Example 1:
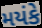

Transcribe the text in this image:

મયંકે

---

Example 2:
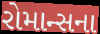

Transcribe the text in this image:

રોમાન્સના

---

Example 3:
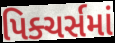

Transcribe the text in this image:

પિક્ચર્સમાં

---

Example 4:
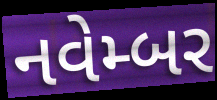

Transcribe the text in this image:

નવેમ્બર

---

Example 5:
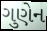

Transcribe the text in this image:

ગુણેન